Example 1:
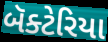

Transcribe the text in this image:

બૅક્ટેરિયા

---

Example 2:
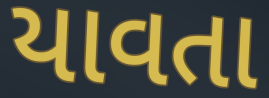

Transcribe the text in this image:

યાવતા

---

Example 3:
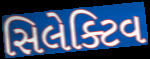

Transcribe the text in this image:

સિલેક્ટિવ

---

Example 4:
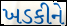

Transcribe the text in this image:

ખડકીને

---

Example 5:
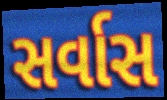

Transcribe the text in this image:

સર્વાસ